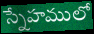
స్నేహములో